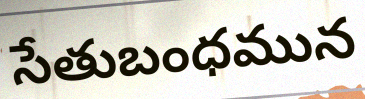
సేతుబంధమున